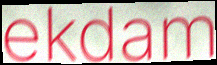
ekdam